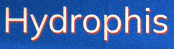
Hydrophis